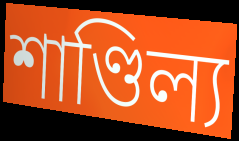
শাণ্ডিল্য